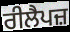
ਰੀਲੈਪਜ਼